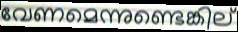
വേണമെന്നുണ്ടെങ്കില്